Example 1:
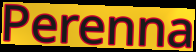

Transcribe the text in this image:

Perenna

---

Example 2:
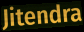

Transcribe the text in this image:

Jitendra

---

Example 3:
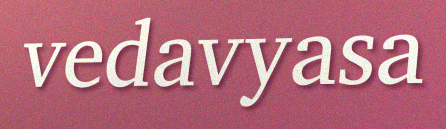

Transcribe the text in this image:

vedavyasa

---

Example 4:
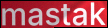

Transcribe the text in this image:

mastak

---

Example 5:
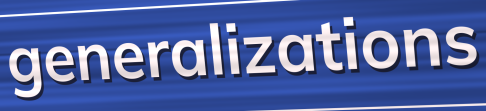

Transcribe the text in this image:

generalizations